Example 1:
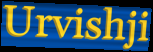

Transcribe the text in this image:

Urvishji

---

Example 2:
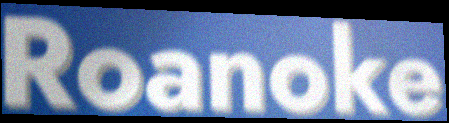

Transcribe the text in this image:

Roanoke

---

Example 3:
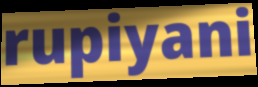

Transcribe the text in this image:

rupiyani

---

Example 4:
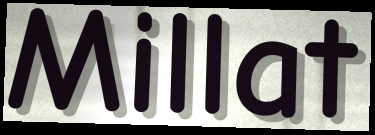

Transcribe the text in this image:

Millat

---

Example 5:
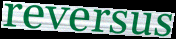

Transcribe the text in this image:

reversus